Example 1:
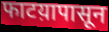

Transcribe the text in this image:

फाटय़ापासून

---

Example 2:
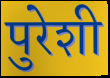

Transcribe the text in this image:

पुरेशी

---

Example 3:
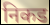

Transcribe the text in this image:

निकड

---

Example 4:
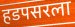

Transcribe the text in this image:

हडपसरला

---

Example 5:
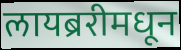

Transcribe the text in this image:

लायब्ररीमधून